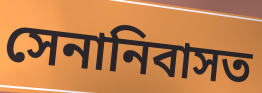
সেনানিবাসত